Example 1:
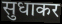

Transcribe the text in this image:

सुधाकर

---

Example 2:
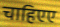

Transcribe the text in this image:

चाहिएए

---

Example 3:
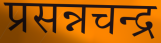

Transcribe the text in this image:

प्रसन्नचन्द्र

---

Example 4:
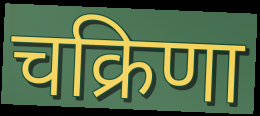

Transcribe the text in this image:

चक्रिणा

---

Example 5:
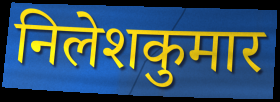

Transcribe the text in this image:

निलेशकुमार